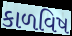
કાળવિષ